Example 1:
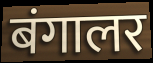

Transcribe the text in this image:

बंगालर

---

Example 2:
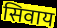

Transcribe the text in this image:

सिवाय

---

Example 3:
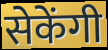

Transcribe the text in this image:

सेकेंगी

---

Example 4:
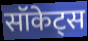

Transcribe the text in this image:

सॉकेट्स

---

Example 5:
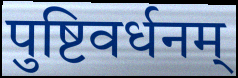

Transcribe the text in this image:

पुष्टिवर्धनम्